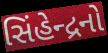
સિંહેન્દ્રનો